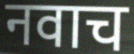
नवाच